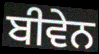
ਬੀਵੇਨ